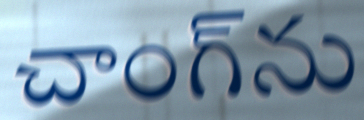
చాంగ్‌ను